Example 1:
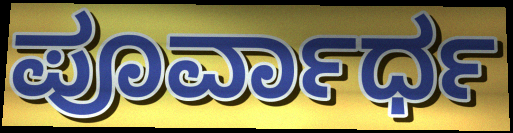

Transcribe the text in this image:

ಪೂರ್ವಾರ್ಧ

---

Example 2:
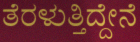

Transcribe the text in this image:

ತೆರಳುತ್ತಿದ್ದೇನೆ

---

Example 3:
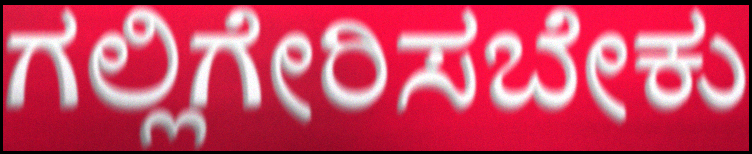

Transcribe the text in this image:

ಗಲ್ಲಿಗೇರಿಸಬೇಕು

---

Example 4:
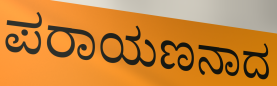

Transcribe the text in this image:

ಪರಾಯಣನಾದ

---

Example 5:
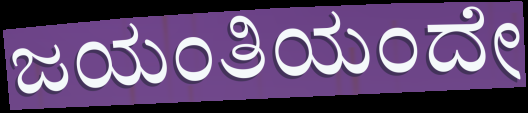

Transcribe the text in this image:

ಜಯಂತಿಯಂದೇ